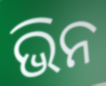
ଭିନ